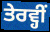
ਤੇਰਵ੍ਹੀਂ